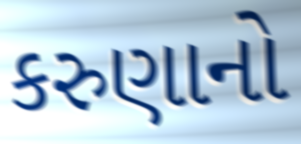
કરુણાનો